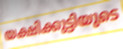
യക്ഷിക്കുട്ടിയുടെ